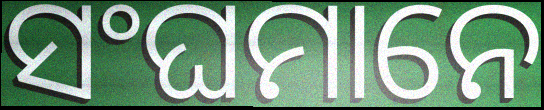
ସଂଘମାନେ